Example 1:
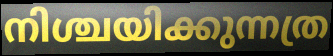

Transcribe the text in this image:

നിശ്ചയിക്കുന്നത്ര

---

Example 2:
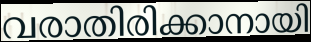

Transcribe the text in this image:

വരാതിരിക്കാനായി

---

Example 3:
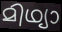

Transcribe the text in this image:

മിഥ്യാ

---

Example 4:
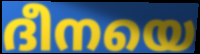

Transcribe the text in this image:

ദീനയെ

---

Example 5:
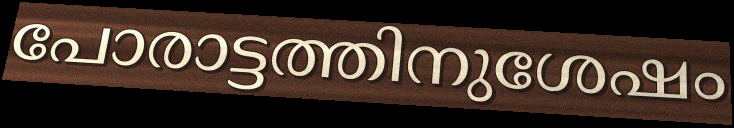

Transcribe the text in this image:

പോരാട്ടത്തിനുശേഷം